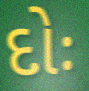
દોઃ